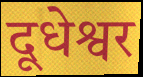
दूधेश्वर